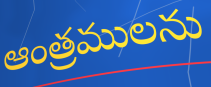
ఆంత్రములను